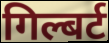
गिल्बर्ट